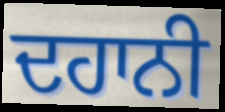
ਦਹਾਨੀ